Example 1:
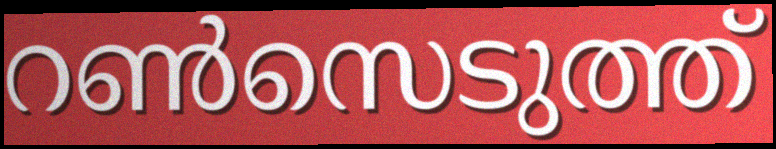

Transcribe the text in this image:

റൺസെടുത്ത്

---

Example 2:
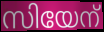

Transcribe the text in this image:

സിയേന്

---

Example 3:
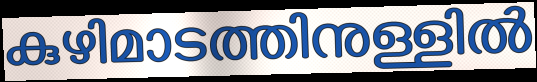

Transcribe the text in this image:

കുഴിമാടത്തിനുള്ളിൽ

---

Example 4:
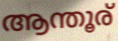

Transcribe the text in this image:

ആന്തൂര്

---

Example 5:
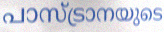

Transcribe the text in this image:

പാസ്ട്രാനയുടെ